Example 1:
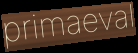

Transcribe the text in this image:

primaeval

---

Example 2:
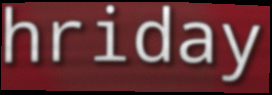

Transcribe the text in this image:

hriday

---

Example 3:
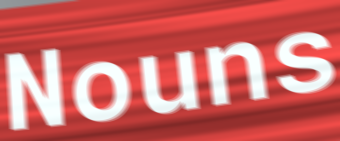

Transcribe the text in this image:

Nouns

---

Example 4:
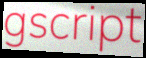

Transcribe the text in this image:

gscript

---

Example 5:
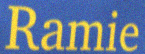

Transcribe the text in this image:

Ramie